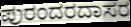
ಪುರಂದರದಾಸರ